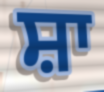
ਸ਼ਾ